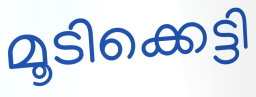
മൂടിക്കെട്ടി